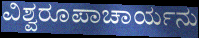
ವಿಶ್ವರೂಪಾಚಾರ್ಯನು